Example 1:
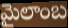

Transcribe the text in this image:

మైలాంబ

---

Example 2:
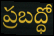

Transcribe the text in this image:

ప్రబద్ధో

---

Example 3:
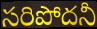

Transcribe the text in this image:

సరిపోదనీ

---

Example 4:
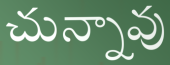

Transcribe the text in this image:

చున్నావు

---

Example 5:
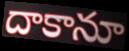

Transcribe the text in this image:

దాకానూ